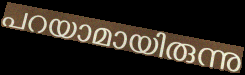
പറയാമായിരുന്നു